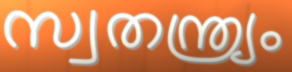
സ്വതന്ത്ര്യം